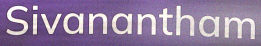
Sivanantham